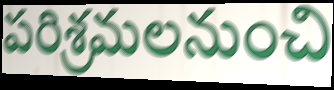
పరిశ్రమలనుంచి